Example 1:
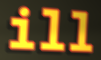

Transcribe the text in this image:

ill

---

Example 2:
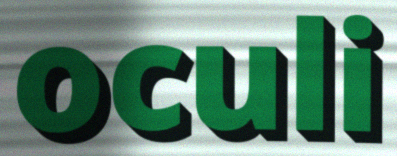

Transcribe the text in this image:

oculi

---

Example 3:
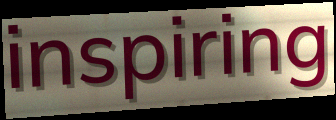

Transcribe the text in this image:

inspiring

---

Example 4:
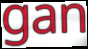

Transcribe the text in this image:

gan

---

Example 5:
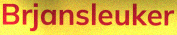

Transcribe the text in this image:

Brjansleuker